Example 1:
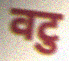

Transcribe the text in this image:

वटु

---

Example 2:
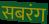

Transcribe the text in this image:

सबरंग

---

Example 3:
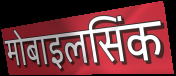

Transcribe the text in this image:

मोबाइलसिंक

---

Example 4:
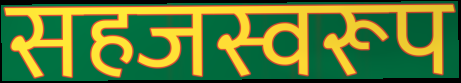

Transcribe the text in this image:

सहजस्वरूप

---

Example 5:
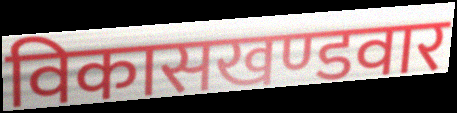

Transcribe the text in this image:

विकासखण्‍डवार